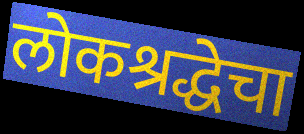
लोकश्रद्धेचा